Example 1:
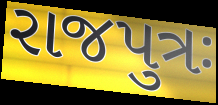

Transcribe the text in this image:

રાજપુત્રઃ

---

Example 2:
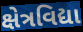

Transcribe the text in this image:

ક્ષેત્રવિદ્યા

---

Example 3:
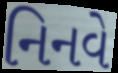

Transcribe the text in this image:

નિનવે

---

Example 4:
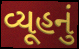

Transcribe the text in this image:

વ્યૂહનું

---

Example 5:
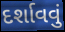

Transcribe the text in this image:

દર્શાવવું